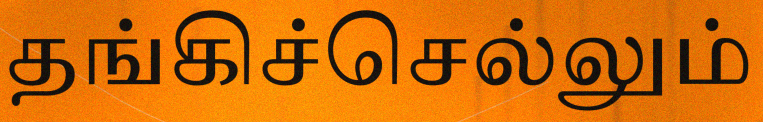
தங்கிச்செல்லும்